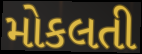
મોકલતી